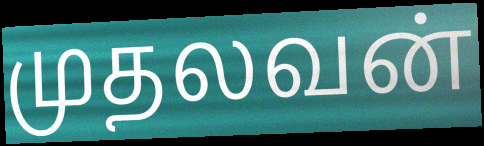
முதலவன்